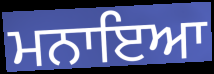
ਮਨਾਇਆ